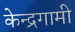
केन्द्रगामी